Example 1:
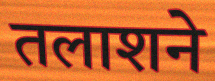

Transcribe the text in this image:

तलाशने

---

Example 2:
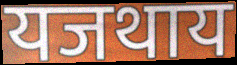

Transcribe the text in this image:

यजथाय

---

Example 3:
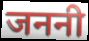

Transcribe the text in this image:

जननी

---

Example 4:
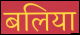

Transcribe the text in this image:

बलिया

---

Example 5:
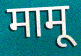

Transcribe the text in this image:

मामू